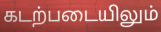
கடற்படையிலும்